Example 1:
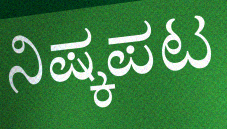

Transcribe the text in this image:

ನಿಷ್ಕಪಟ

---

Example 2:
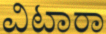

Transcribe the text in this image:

ವಿಟಾರಾ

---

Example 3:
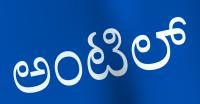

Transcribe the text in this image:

ಅಂಟಿಲ್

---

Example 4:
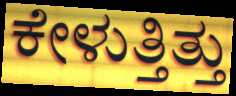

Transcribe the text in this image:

ಕೇಳುತ್ತಿತ್ತು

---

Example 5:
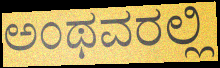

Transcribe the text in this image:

ಅಂಥವರಲ್ಲಿ